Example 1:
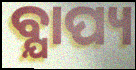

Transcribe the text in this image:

ବ୍ଯାପ୍ୟ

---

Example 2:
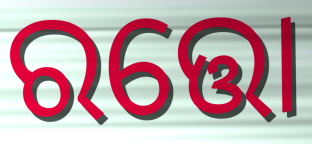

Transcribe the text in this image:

ରତ୍ତୋ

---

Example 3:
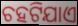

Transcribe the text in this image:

ଚହଟିଯାଏ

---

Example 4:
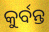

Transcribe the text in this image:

କୁର୍ବନ୍ତ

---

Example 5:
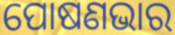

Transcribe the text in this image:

ପୋଷଣଭାର